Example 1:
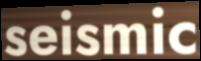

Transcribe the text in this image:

seismic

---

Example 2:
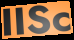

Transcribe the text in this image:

IISc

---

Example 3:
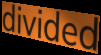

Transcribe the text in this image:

divided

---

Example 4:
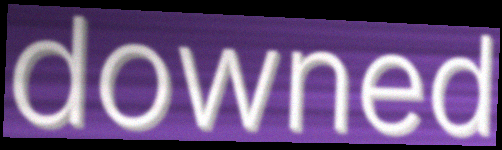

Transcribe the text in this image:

downed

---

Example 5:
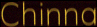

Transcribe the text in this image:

Chinna